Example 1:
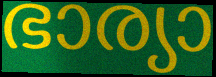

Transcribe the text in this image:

ഭാര്യാ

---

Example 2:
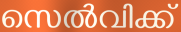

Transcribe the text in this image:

സെൽവിക്ക്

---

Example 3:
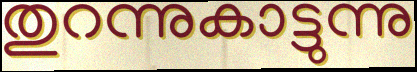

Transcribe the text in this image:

തുറന്നുകാട്ടുന്നു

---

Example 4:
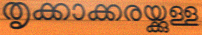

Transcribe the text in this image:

തൃക്കാക്കരയ്ക്കുള്ള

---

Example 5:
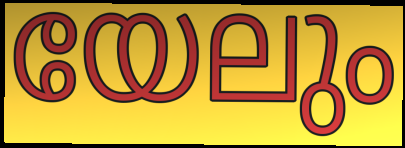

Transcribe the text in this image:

യേലും